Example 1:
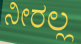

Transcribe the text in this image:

ನೀರಲ್ಲ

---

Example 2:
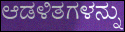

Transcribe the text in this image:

ಆಡಳಿತಗಳನ್ನು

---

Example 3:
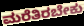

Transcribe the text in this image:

ಮರೆತಿರಬೇಕು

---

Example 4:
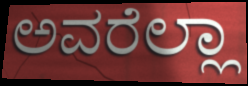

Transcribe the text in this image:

ಅವರೆಲ್ಲಾ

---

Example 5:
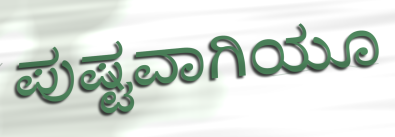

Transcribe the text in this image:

ಪುಷ್ಟವಾಗಿಯೂ